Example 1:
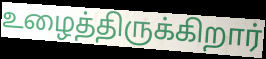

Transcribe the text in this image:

உழைத்திருக்கிறார்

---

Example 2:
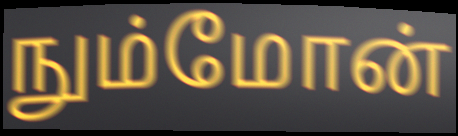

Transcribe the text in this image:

நும்மோன்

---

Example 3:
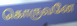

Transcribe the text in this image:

கொருவனே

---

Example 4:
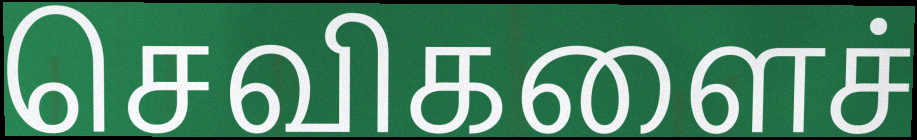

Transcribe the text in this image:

செவிகளைச்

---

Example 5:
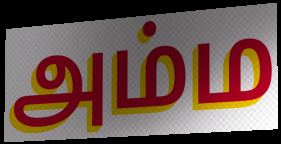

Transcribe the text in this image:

அம்ம